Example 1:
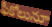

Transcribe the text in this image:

ఫీకోలునూ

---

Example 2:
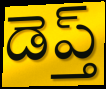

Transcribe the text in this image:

డెప్త్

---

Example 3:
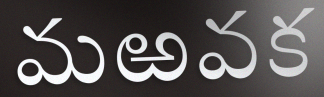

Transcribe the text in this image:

మఱవక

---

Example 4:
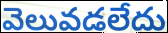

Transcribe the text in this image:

వెలువడలేదు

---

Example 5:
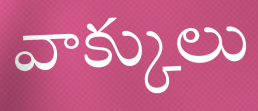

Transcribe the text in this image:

వాక్కులు